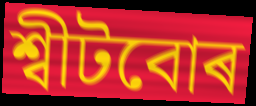
শ্বীটবোৰ